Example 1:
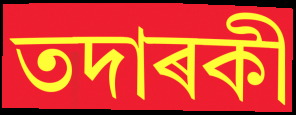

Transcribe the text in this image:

তদাৰকী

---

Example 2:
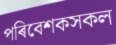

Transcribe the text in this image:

পৰিবেশকসকল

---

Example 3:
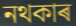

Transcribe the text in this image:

নথকাৰ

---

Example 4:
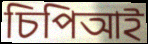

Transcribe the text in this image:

চিপিআই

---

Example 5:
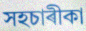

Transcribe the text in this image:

সহচাৰীকা